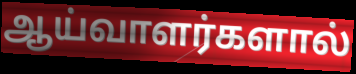
ஆய்வாளர்களால்